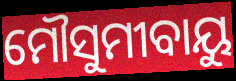
ମୌସୁମୀବାୟୁ